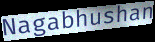
Nagabhushan